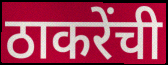
ठाकरेंची